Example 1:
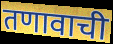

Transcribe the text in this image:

तणावाची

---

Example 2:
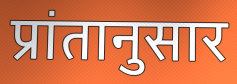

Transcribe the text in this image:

प्रांतानुसार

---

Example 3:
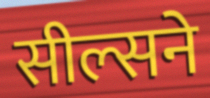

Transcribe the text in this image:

सील्सने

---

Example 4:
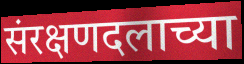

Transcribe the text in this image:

संरक्षणदलाच्या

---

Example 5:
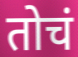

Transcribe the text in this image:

तोचं